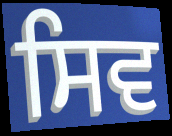
ਸਿਵ